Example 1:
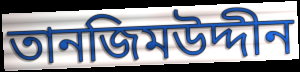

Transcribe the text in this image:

তানজিমউদ্দীন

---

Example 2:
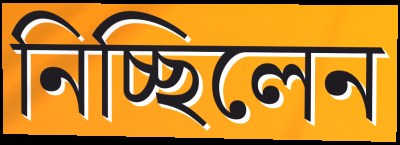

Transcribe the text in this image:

নিচ্ছিলেন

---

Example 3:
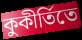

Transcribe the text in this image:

কুকীর্তিতে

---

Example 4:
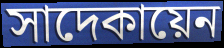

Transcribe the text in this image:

সাদেকায়েন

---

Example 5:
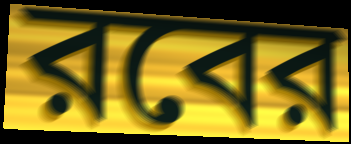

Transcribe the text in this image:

রবের